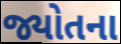
જ્યોતના